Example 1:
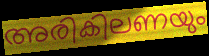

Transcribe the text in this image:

അരികിലണയും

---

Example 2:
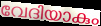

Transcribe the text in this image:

വേദിയാകും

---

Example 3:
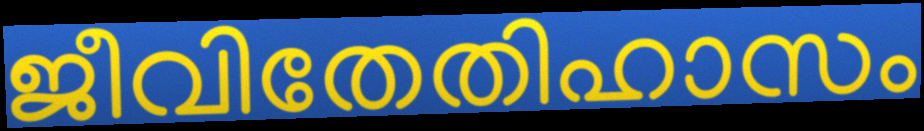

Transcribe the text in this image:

ജീവിതേതിഹാസം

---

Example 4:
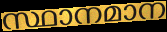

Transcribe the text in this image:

സ്ഥാനമാന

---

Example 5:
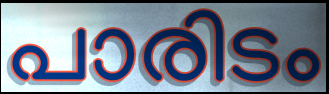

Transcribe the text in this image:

പാരിടം